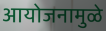
आयोजनामुळे